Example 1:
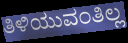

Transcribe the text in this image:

ತಿಳಿಯುವಂತಿಲ್ಲ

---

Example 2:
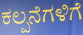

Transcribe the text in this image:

ಕಲ್ಪನೆಗಳಿಗೆ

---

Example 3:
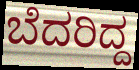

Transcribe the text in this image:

ಬೆದರಿದ್ದ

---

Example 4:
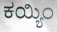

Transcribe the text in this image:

ಕಯ್ಯಿಂ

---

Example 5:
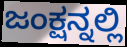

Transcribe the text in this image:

ಜಂಕ್ಷನ್ನಲ್ಲಿ